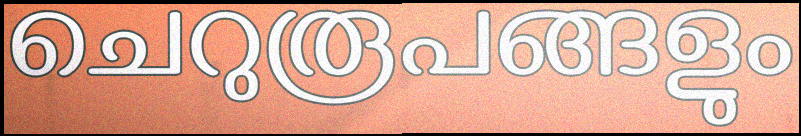
ചെറുരൂപങ്ങളും